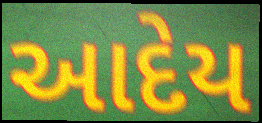
આદેય